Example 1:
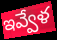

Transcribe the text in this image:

ఇవ్వేళ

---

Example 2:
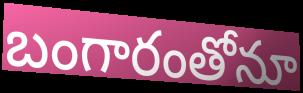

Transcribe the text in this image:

బంగారంతోనూ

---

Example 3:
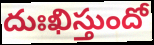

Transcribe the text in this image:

దుఃఖిస్తుందో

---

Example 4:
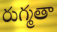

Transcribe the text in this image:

రుగ్మతా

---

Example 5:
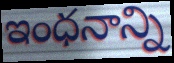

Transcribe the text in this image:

ఇంధనాన్ని